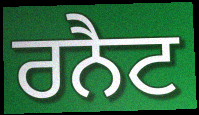
ਰਨੈਟ